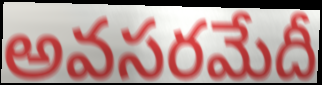
అవసరమేదీ